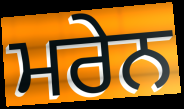
ਮਰੇਨ